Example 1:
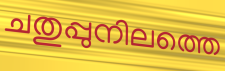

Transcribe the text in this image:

ചതുപ്പുനിലത്തെ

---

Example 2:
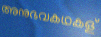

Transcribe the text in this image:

അനുഭവകഥകള്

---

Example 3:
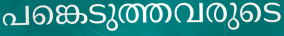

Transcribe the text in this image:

പങ്കെടുത്തവരുടെ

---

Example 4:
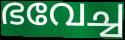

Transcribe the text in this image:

ഭവേച്ച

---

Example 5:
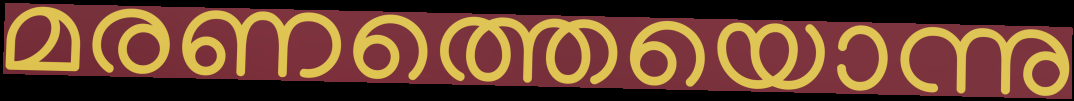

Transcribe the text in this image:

മരണത്തെയൊന്നു